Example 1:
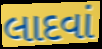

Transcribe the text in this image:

લાદવાં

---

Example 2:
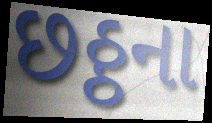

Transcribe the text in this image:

છઠ્ઠના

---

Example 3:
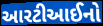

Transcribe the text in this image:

આરટીઆઈનો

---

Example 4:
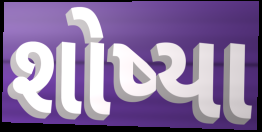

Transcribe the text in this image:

શોષ્યા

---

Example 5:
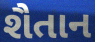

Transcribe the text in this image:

શૈતાન